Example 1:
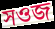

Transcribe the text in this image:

সওজ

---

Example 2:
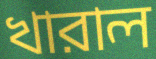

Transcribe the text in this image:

খারাল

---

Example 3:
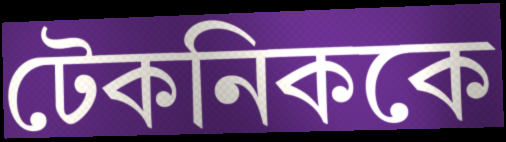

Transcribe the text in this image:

টেকনিককে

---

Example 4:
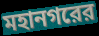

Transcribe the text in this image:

মহানগরের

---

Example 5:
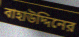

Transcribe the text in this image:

বাহাউদ্দিনের